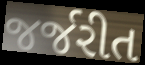
જર્જરીત